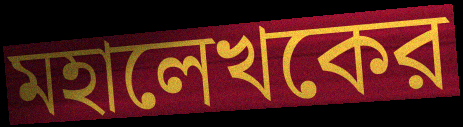
মহালেখকের